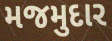
મજમુદાર